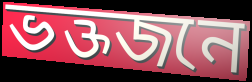
ভক্তজনে